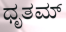
ಧೃತಮ್